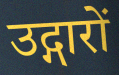
उद्गारों